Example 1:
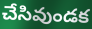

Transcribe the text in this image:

చేసివుండక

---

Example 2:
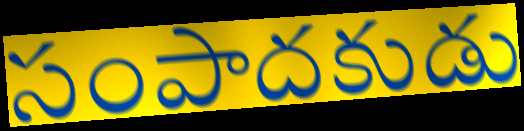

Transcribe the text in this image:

సంపాదకుడు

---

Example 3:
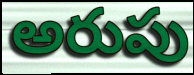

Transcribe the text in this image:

అరుపు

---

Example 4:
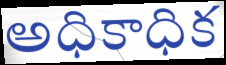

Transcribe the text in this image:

అధికాధిక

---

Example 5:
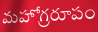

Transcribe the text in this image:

మహోగ్రరూపం